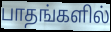
பாதங்களில்